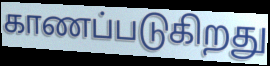
காணப்படுகிறது